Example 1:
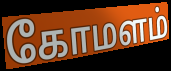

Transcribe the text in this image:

கோமளம்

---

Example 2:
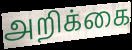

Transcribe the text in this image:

அறிக்கை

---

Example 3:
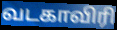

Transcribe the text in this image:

வடகாவிரி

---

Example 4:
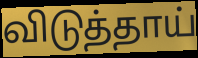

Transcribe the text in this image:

விடுத்தாய்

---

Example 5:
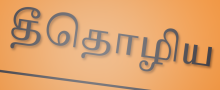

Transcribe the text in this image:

தீதொழிய